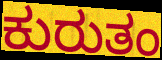
ಕುರುತಂ